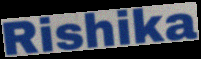
Rishika